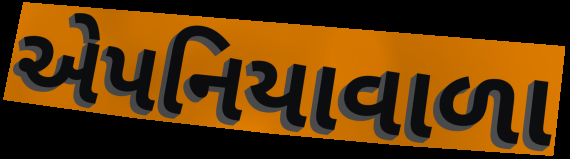
એપનિયાવાળા